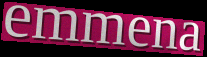
emmena